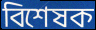
বিশেষক